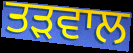
ਤੜਵਾਲ